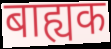
बाह्यक